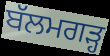
ਬੱਲਮਗੜ੍ਹ